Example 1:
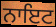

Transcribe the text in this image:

ਨਾਇਟ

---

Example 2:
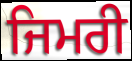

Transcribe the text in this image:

ਜਿਮਰੀ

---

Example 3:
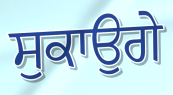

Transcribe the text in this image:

ਸੁਕਾਉਗੇ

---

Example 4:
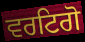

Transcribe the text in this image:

ਵਰਟਿਗੋ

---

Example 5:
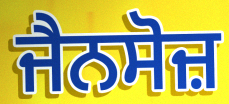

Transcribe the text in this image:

ਜੈਨਸੋਜ਼